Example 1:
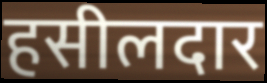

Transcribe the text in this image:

हसीलदार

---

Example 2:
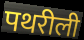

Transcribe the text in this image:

पथरीली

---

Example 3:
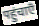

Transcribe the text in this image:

पहुंचाएँ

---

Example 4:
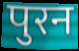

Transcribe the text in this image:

पुरन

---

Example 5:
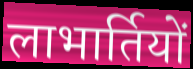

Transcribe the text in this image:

लाभार्तियों